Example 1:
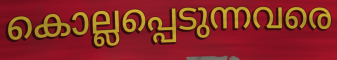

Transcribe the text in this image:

കൊല്ലപ്പെടുന്നവരെ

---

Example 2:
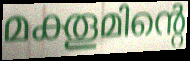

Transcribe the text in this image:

മക്തൂമിന്റെ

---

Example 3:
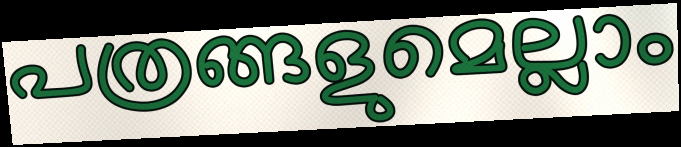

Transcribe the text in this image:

പത്രങ്ങളുമെല്ലാം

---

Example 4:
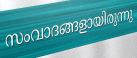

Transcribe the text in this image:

സംവാദങ്ങളായിരുന്നു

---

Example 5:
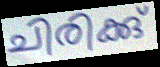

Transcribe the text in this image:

ചിരിക്കു്